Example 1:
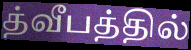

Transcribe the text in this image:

த்வீபத்தில்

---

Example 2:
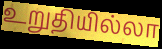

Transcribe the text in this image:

உறுதியில்லா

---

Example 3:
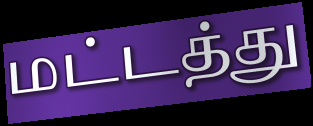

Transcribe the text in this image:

மட்டத்து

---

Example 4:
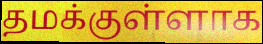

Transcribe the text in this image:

தமக்குள்ளாக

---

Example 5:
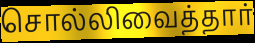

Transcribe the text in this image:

சொல்லிவைத்தார்